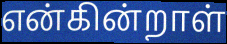
என்கின்றாள்